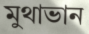
মুথাভান